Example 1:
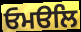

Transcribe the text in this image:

ਓਮੳਲਿ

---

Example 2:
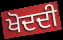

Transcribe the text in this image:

ਖੋਦਦੀ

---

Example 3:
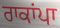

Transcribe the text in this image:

ਰਾਕਾਂਪਾ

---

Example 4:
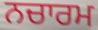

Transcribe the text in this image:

ਨਚਾਰਮ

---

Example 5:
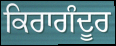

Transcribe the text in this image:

ਕਿਰਾਗੰਦੂਰ